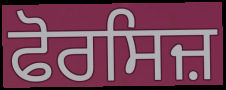
ਫੋਰਸਿਜ਼